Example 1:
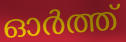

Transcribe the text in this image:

ഓർത്ത്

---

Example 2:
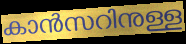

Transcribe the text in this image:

കാൻസറിനുള്ള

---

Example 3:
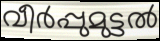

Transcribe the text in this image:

വീർപ്പുമുട്ടൽ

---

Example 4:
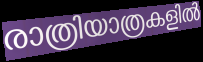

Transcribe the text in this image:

രാത്രിയാത്രകളിൽ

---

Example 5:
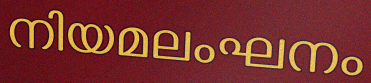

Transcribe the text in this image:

നിയമലംഘനം